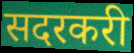
सदरकरी